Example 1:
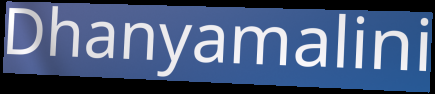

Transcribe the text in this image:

Dhanyamalini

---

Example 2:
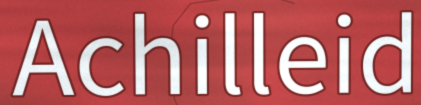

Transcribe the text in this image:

Achilleid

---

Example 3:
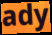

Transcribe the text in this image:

ady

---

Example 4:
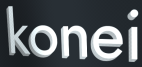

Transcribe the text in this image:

konei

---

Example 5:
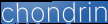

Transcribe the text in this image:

chondrin